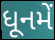
ધૂનમેં